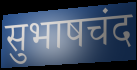
सुभाषचंद